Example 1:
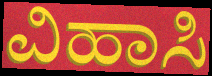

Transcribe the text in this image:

ವಿಹಾಸಿ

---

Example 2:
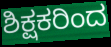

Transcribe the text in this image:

ಶಿಕ್ಷಕರಿಂದ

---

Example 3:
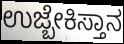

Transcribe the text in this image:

ಉಜ್ಬೇಕಿಸ್ತಾನ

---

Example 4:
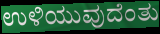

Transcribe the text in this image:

ಉಳಿಯುವುದೆಂತು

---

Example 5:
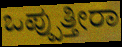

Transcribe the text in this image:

ಒಪ್ಪುತ್ತೀರಾ